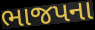
ભાજપના